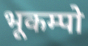
भूकम्पो